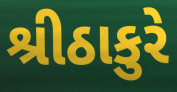
શ્રીઠાકુરે